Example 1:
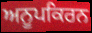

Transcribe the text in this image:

ਅਨੂਪਕਿਰਨ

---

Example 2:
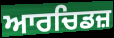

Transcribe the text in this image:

ਆਰਚਿਡਜ਼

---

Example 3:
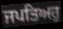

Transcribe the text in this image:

ਜਪਤਿਅਹੁ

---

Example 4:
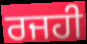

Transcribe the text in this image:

ਰਜਹੀ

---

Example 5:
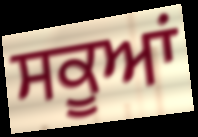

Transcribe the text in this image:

ਸਕੂਆਂ